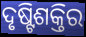
ଦୃଷ୍ଟିଶକ୍ତିର